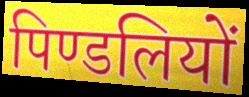
पिण्डलियों